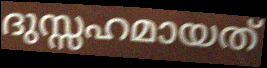
ദുസ്സഹമായത്